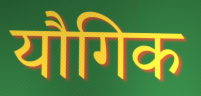
यौगिक